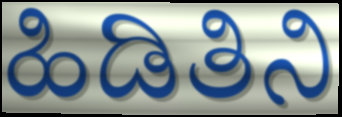
ಹಿಡಿತಿನಿ